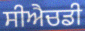
ਸੀਐਚਡੀ